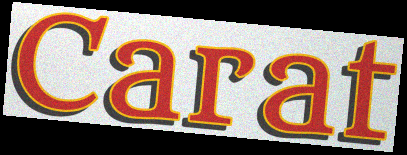
Carat